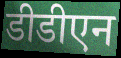
डीडीएन